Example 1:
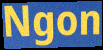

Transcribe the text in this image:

Ngon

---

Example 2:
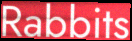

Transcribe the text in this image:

Rabbits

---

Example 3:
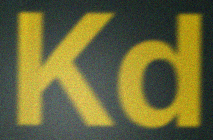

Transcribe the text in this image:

Kd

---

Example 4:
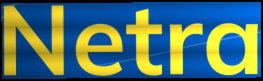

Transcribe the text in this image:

Netra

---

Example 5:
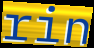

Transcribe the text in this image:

rin